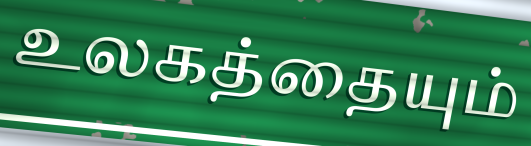
உலகத்தையும்